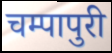
चम्पापुरी